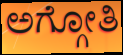
ಅಗ್ಗೋತಿ